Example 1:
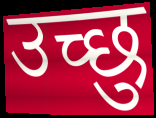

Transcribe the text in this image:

उच्छु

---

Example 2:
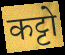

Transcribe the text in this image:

कट्टो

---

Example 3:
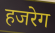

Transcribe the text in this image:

हजरेग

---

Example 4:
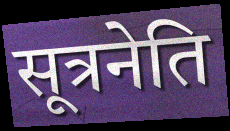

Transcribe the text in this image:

सूत्रनेति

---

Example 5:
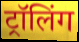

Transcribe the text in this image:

ट्रॉलिंग